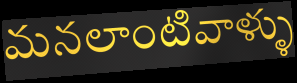
మనలాంటివాళ్ళు